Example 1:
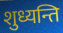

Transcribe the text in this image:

शुध्यन्ति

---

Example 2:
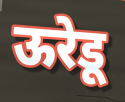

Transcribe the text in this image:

ऊरेडू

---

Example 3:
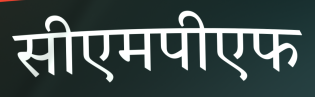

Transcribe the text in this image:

सीएमपीएफ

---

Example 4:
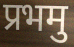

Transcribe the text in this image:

प्रभमु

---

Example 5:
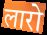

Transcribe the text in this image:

लारो